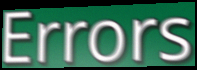
Errors